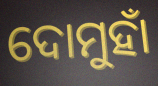
ଦୋମୁହାଁ